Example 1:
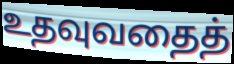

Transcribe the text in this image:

உதவுவதைத்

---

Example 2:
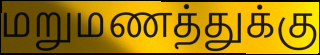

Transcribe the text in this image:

மறுமணத்துக்கு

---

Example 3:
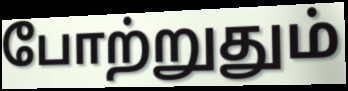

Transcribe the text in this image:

போற்றுதும்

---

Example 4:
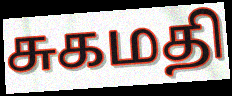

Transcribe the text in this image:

சுகமதி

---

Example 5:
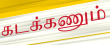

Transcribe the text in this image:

கடக்கணும்